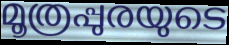
മൂത്രപ്പുരയുടെ